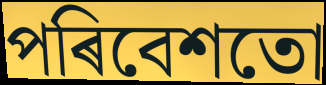
পৰিবেশতো